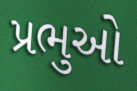
પ્રભુઓ